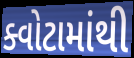
ક્વોટામાંથી